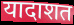
यादाशत